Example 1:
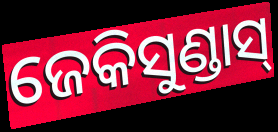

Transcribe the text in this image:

ଜେକିସୁଣ୍ଡାସ୍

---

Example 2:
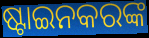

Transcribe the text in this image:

ଷ୍ଟାଇନକରଙ୍କ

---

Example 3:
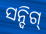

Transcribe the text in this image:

ସନ୍ଦିଗ୍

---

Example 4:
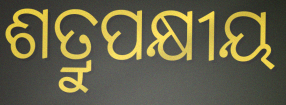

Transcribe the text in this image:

ଶତ୍ରୁପକ୍ଷୀୟ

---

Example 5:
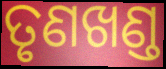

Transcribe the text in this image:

ତୃଣଖଣ୍ଡ